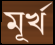
মূর্খ